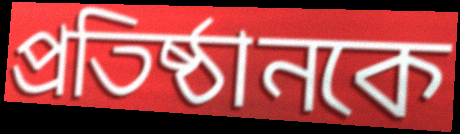
প্রতিষ্ঠানকে